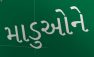
માડુઓને